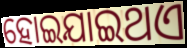
ହୋଇଯାଇଥଏ